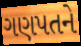
ગણપતને